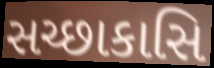
સચ્છાકાસિ